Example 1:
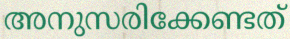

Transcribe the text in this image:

അനുസരിക്കേണ്ടത്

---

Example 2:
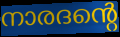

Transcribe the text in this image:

നാരദന്റെ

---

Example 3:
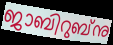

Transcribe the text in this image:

ജാബിറുബ്നു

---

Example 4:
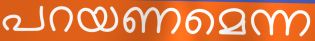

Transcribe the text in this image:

പറയണമെന്ന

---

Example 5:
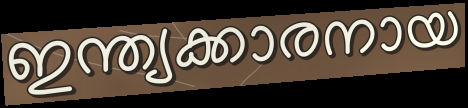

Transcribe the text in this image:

ഇന്ത്യക്കാരനായ